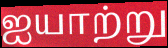
ஐயாற்று